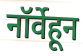
नॉर्वेहून